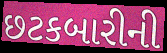
છટકબારીની